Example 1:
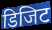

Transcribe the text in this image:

डिजिट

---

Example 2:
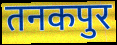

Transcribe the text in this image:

तनकपुर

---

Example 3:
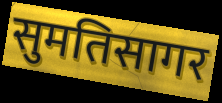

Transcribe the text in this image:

सुमतिसागर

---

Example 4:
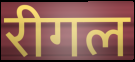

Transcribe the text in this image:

रीगल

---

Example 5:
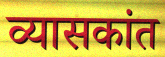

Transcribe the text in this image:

व्यासकांत